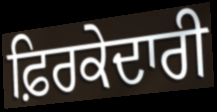
ਫ਼ਿਰਕੇਦਾਰੀ